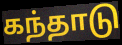
கந்தாடு